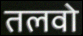
तलवो